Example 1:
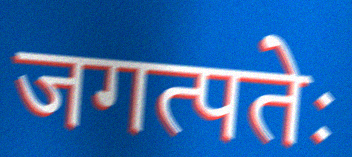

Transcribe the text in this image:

जगत्पतेः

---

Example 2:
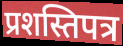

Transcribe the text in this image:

प्रशस्तिपत्र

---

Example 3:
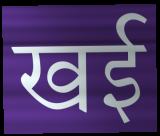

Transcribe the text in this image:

खई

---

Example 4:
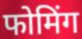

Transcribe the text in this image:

फोमिंग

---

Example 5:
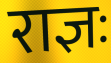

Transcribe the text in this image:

राज्ञः